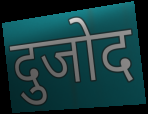
दुजोद